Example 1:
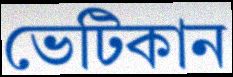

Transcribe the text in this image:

ভেটিকান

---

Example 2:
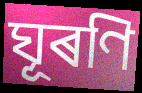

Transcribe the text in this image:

ঘূৰণি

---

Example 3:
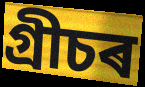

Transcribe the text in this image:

গ্ৰীচৰ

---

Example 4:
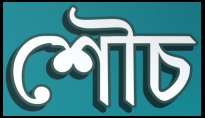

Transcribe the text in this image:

শৌচ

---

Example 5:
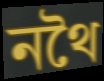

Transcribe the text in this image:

নথৈ